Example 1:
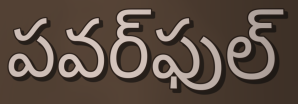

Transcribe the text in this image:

పవర్‌ఫుల్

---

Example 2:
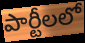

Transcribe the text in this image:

పార్టీలలో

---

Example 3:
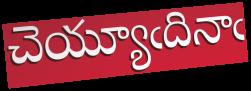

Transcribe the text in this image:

చెయ్యూఁదినాఁ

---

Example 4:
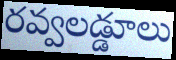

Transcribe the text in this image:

రవ్వలడ్డూలు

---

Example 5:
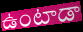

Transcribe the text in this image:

ఉంటాడా